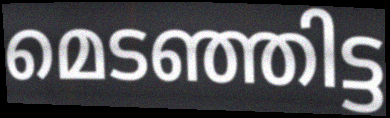
മെടഞ്ഞിട്ട